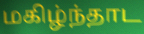
மகிழ்ந்தாட